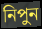
নিপুন